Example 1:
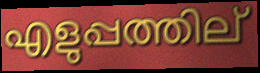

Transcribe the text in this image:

എളുപ്പത്തില്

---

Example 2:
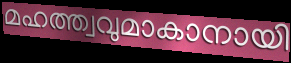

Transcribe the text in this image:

മഹത്ത്വവുമാകാനായി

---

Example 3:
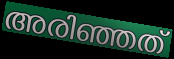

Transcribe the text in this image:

അരിഞ്ഞത്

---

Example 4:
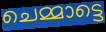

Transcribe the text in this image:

ചെമ്മാട്ടെ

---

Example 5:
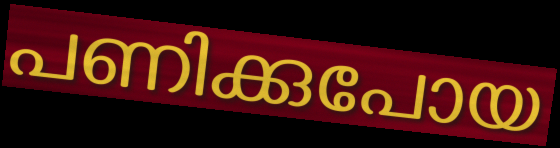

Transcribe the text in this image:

പണിക്കുപോയ